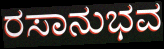
ರಸಾನುಭವ